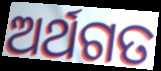
ଅର୍ଥଗତ